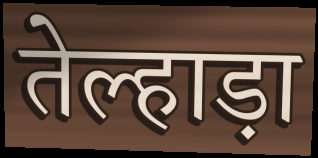
तेल्हाड़ा